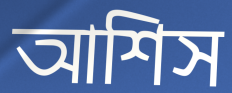
আশিস